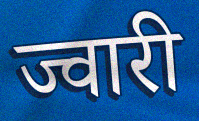
ज्वारी